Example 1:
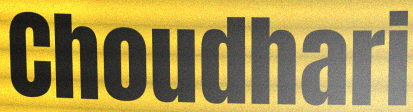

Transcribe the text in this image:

Choudhari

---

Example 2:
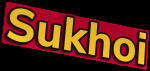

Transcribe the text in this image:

Sukhoi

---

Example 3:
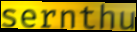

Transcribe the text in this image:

sernthu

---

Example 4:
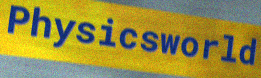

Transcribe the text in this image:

Physicsworld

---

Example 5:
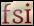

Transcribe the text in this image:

fsi